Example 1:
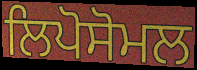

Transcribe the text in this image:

ਲਿਪੋਸੋਮਲ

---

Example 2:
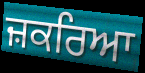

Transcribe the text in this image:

ਜ਼ਕਰਿਆ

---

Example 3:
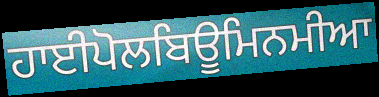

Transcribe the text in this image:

ਹਾਈਪੋਲਬਿਊਮਿਨਮੀਆ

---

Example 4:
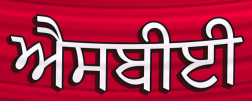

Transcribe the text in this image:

ਐਸਬੀਈ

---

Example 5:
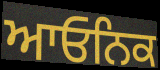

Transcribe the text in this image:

ਆਓਨਿਕ